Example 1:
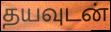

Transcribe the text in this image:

தயவுடன்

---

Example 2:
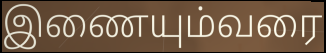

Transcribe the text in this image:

இணையும்வரை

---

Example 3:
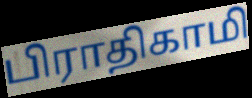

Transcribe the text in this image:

பிராதிகாமி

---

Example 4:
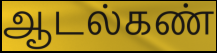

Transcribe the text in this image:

ஆடல்கண்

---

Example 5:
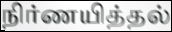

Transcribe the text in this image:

நிர்ணயித்தல்